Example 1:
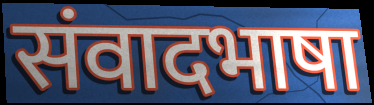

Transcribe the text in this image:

संवादभाषा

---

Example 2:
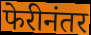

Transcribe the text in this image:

फेरीनंतर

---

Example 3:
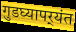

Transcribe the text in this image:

गुडघ्यापर्यंत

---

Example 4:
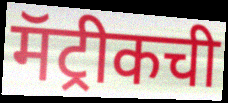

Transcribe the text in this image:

मॅट्रीकची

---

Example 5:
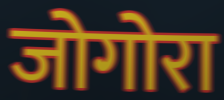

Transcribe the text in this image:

जोगोरा